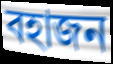
বহাজন